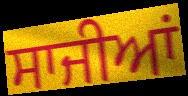
ਸਾਜੀਆਂ